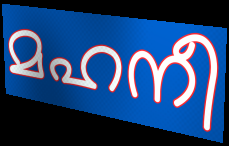
മഹനീ